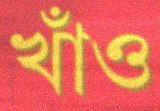
খাঁও